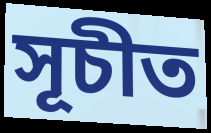
সূচীত